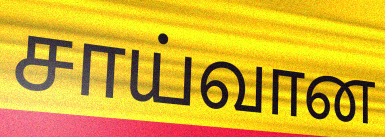
சாய்வான